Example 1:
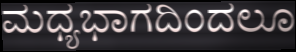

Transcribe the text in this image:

ಮಧ್ಯಭಾಗದಿಂದಲೂ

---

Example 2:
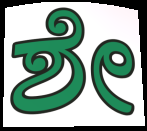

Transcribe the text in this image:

ಶೇ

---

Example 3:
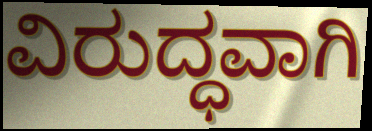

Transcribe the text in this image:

ವಿರುದ್ಧವಾಗಿ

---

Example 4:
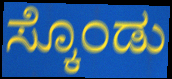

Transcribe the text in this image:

ಸ್ಕೊಂಡು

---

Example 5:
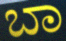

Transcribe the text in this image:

ಬಾ